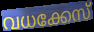
വധക്കേസ്